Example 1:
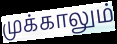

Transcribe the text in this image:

முக்காலும்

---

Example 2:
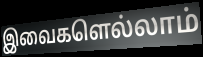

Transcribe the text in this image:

இவைகளெல்லாம்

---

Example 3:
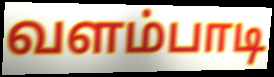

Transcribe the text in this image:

வளம்பாடி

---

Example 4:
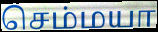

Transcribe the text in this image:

செம்மயா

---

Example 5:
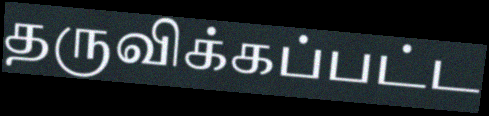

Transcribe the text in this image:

தருவிக்கப்பட்ட